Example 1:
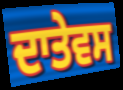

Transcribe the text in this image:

ਦਾਤੇਵਸ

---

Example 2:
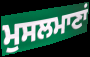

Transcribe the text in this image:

ਮੁਸਲਮਾਣਾਂ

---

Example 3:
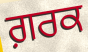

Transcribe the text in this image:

ਗ਼ਰਕ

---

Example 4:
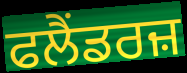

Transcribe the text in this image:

ਫਲੈਂਡਰਜ਼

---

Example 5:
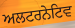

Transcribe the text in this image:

ਅਲਟਰਨੇਟਿਵ